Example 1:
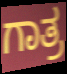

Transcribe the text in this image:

ಗಾತ್ರ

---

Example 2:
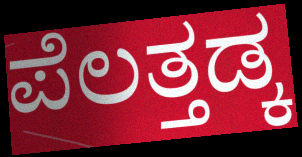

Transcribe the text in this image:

ಪೆಲತ್ತಡ್ಕ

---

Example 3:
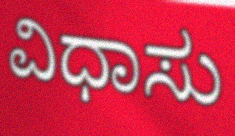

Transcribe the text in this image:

ವಿಧಾಸು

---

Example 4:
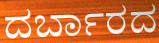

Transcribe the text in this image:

ದರ್ಬಾರದ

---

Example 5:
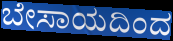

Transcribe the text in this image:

ಬೇಸಾಯದಿಂದ